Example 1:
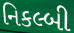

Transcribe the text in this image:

નિકલ્બી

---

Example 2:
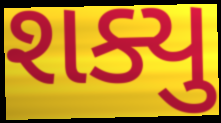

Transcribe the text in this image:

શક્યુ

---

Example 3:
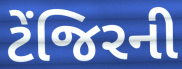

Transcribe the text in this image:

ટેંજિરની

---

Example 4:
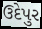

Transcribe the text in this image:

ઉદેપુર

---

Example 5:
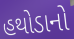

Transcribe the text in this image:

હથોડાનો